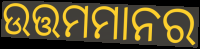
ଉତ୍ତମମାନର